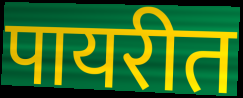
पायरीत